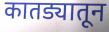
कातड्यातून